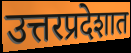
उत्तरप्रदेशात